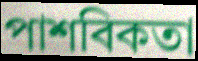
পাশবিকতা